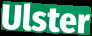
Ulster